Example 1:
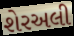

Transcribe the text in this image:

શેરઅલી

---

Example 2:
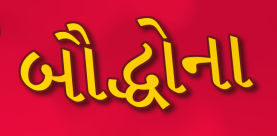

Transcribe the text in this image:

બૌદ્ધોના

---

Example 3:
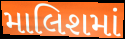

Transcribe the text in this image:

માલિશમાં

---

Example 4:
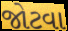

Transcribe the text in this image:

જોટવા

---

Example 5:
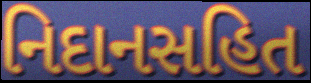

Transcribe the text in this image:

નિદાનસહિત